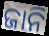
ଜାନି